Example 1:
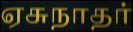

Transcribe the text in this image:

ஏசுநாதர்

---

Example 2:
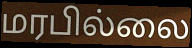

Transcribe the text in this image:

மரபில்லை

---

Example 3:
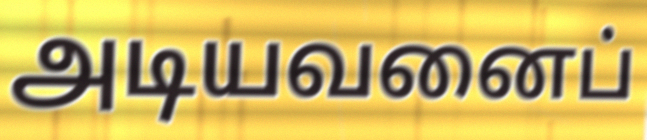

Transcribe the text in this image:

அடியவனைப்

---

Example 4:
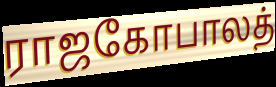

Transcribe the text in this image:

ராஜகோபாலத்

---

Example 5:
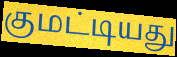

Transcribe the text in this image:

குமட்டியது